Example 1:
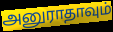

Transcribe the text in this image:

அனுராதாவும்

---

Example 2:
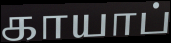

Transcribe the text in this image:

காயாப்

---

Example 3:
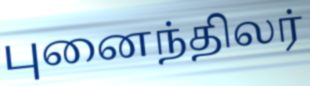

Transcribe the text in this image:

புனைந்திலர்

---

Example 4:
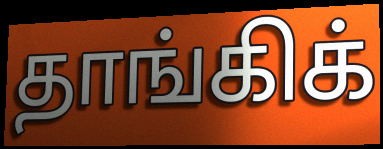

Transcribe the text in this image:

தாங்கிக்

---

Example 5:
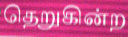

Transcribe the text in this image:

தெறுகின்ற